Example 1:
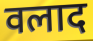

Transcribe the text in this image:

वलाद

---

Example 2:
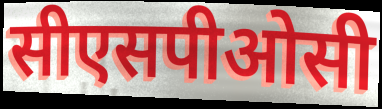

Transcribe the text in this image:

सीएसपीओसी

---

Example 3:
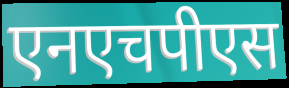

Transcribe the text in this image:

एनएचपीएस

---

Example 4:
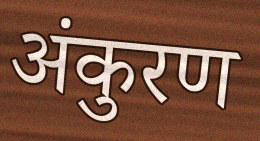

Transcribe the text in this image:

अंकुरण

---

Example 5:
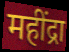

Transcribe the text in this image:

महींद्रा